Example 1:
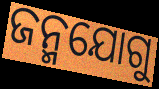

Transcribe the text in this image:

ଜନ୍ମଯୋଗୁ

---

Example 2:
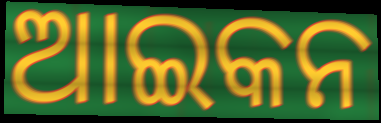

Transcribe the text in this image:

ଆଇକନ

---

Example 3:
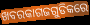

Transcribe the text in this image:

ଖବରକାଗଜଗୁଡିକରେ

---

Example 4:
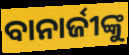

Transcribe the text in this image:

ବାନାର୍ଜୀଙ୍କୁ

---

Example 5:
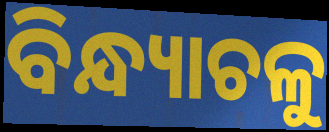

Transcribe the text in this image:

ବିନ୍ଧ୍ୟାଚଳୁ